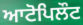
ਆਟੋਪਿਲੌਟ